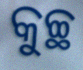
କୁଚ୍ଛ